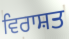
ਵਿਰਾਸ਼ਤ